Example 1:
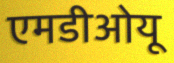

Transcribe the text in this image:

एमडीओयू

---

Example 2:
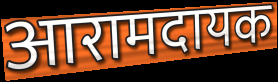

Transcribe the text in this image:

आरामदायक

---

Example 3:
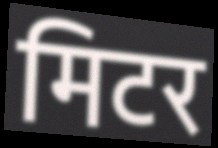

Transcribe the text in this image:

मिटर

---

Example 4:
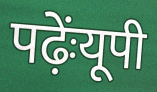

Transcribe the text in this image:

पढ़ेंःयूपी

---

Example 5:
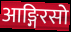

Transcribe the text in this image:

आङ्गिरसो